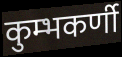
कुम्भकर्णी